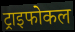
ट्राइफोकल